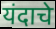
यंदाचे